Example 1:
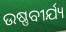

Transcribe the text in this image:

ଉଷ୍ଣବୀର୍ଯ୍ୟ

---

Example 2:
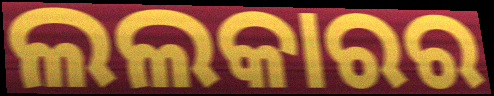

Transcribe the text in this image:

ଲଲକାରର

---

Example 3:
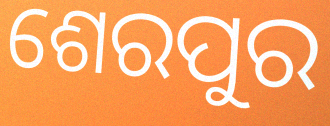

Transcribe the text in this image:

ଶେରପୁର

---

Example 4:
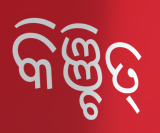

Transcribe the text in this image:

କିଞ୍ଚିତ୍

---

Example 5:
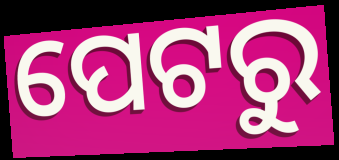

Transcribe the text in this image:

ପେଟରୁ